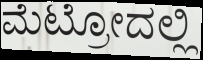
ಮೆಟ್ರೋದಲ್ಲಿ